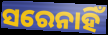
ସରେନାହିଁ